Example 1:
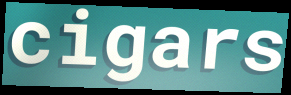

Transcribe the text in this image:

cigars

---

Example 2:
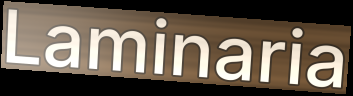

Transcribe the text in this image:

Laminaria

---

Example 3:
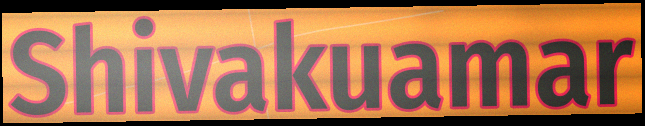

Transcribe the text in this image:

Shivakuamar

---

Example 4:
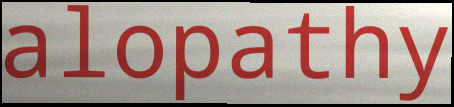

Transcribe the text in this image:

alopathy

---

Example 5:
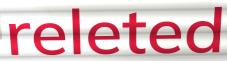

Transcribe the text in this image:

releted